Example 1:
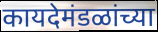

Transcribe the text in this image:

कायदेमंडळांच्या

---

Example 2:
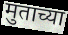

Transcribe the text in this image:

मुताच्या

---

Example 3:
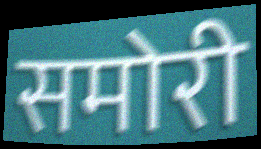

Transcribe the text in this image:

समोरी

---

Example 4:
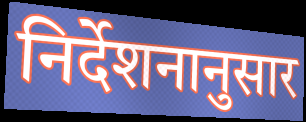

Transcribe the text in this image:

निर्देशनानुसार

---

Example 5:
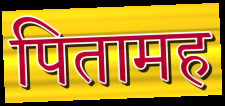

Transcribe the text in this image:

पितामह